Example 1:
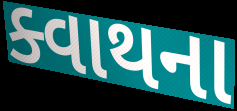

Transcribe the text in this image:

ક્વાથના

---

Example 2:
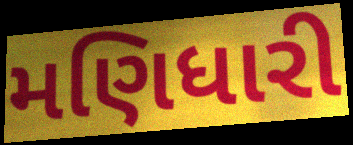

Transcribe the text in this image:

મણિધારી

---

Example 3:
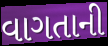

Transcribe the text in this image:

વાગતાની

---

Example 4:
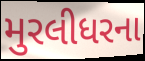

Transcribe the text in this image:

મુરલીધરના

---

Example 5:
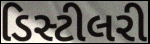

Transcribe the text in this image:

ડિસ્ટીલરી